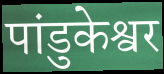
पांडुकेश्वर